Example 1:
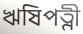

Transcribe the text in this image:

ঋষিপত্নী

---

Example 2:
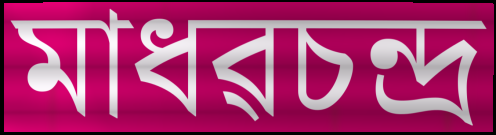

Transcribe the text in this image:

মাধৱচন্দ্ৰ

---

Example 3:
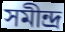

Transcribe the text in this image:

সমীন্দ্ৰ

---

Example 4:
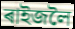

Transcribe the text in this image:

ৰাইজলৈ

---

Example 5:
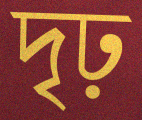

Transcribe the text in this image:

দৃঢ়